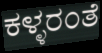
ಕಳ್ಳರಂತೆ